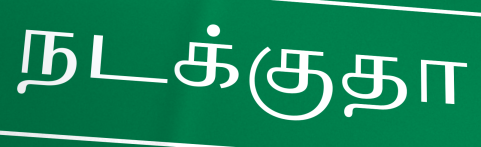
நடக்குதா